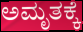
ಅಮೃತಕ್ಕೆ